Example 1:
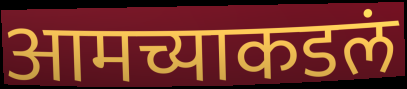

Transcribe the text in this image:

आमच्याकडलं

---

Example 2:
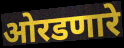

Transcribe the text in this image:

ओरडणारे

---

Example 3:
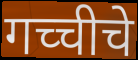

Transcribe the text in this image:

गच्चीचे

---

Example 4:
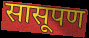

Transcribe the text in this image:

सासूपण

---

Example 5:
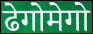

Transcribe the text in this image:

ढेगोमेगो